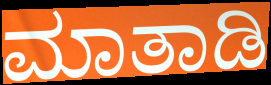
ಮಾತಾಡಿ